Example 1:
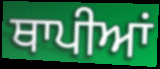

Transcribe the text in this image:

ਥਾਪੀਆਂ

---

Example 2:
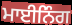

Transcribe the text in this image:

ਮਾਈਨਿੰਗ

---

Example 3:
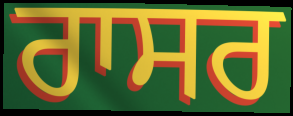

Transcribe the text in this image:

ਰਾਸਰ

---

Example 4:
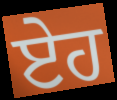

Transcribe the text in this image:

ਏਹ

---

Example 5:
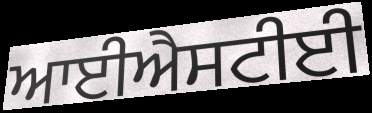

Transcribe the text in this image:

ਆਈਐਸਟੀਈ